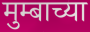
मुम्बाच्या